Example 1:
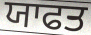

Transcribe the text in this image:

ਯਾਫਤ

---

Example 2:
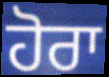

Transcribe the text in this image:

ਹੋਰਾ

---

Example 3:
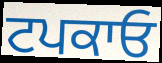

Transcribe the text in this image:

ਟਪਕਾਓ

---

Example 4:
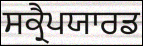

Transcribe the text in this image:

ਸਕ੍ਰੈਪਯਾਰਡ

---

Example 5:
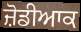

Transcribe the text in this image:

ਜ਼ੋਡੀਆਕ